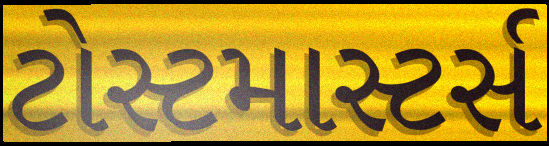
ટોસ્ટમાસ્ટર્સ